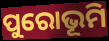
ପୁରୋଭୂମି